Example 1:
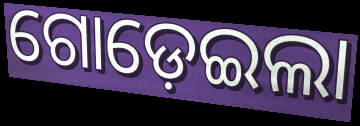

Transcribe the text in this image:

ଗୋଡ଼େଇଲା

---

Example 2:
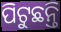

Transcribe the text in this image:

ପିଟୁଛନ୍ତି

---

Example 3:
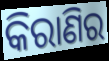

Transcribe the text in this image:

କିରାଣିର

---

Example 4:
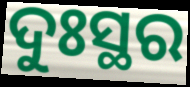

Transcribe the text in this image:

ଦୁଃସ୍ଥର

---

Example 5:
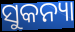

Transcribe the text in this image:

ସୁକନ୍ୟା